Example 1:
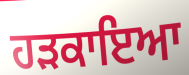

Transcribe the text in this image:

ਹੜਕਾਇਆ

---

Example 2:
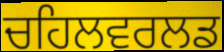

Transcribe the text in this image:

ਚਹਿਲਵਰਲਡ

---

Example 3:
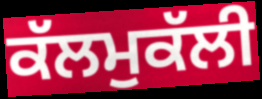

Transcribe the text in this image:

ਕੱਲਮੁਕੱਲੀ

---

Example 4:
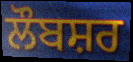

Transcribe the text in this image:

ਲੌਬਸ਼ਰ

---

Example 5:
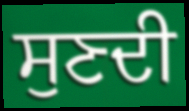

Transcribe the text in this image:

ਸੁਣਦੀ